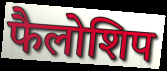
फैलोशिप